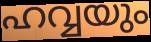
ഹവ്വയും